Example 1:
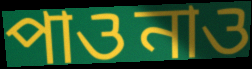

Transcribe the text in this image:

পাওনাও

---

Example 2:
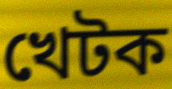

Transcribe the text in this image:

খেটক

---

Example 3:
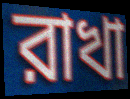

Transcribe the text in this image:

রাখা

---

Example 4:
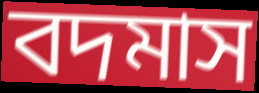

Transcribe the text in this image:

বদমাস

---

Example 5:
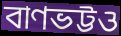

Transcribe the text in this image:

বাণভট্টও